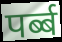
पर्ब्ब